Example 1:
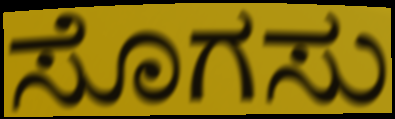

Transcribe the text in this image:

ಸೊಗಸು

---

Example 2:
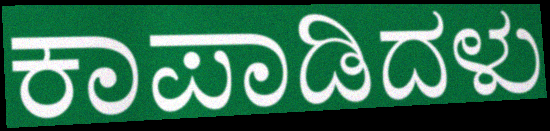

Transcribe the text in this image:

ಕಾಪಾಡಿದಳು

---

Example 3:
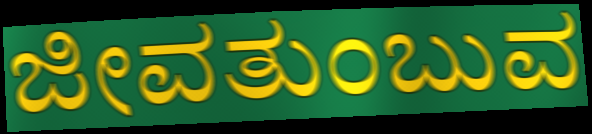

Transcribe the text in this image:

ಜೀವತುಂಬುವ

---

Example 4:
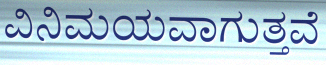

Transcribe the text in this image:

ವಿನಿಮಯವಾಗುತ್ತವೆ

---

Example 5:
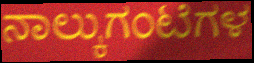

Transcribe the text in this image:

ನಾಲ್ಕುಗಂಟೆಗಳ